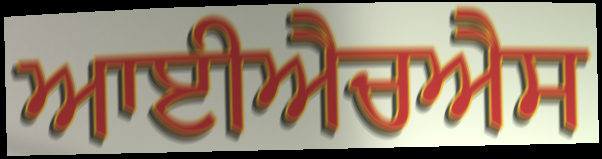
ਆਈਐਚਐਸ